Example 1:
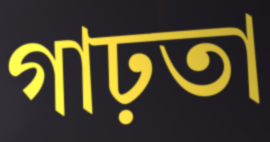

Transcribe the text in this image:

গাঢ়তা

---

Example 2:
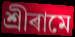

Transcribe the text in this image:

শ্ৰীৰামে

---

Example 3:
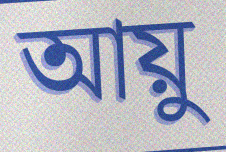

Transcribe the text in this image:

আয়ু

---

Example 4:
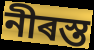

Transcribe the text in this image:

নীৰস্ত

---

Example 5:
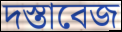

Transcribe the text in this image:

দস্তাবেজ